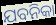
ଯବନିକା